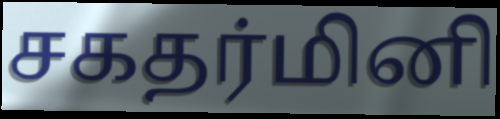
சகதர்மினி